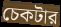
চেকটার